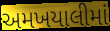
અમખયાલીમાં